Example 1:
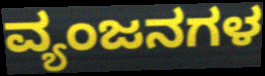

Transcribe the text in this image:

ವ್ಯಂಜನಗಳ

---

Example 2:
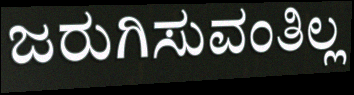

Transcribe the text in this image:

ಜರುಗಿಸುವಂತಿಲ್ಲ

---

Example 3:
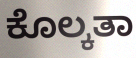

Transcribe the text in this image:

ಕೊಲ್ಕತಾ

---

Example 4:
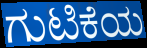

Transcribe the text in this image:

ಗುಟಿಕೆಯ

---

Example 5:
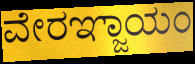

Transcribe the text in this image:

ವೇರಞ್ಜಾಯಂ